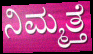
ನಿಮ್ಮತ್ತೆ